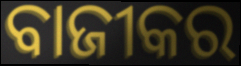
ବାଜୀକର